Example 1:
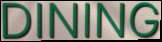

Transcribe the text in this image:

DINING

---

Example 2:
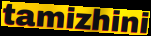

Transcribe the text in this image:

tamizhini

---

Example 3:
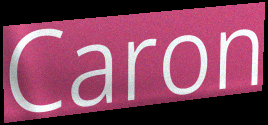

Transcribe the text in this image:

Caron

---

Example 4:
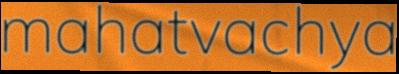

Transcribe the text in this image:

mahatvachya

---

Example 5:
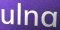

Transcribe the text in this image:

ulna